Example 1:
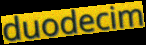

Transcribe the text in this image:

duodecim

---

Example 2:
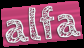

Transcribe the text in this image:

alfa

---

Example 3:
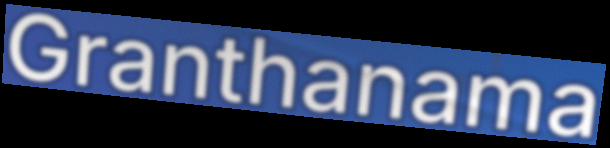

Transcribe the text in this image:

Granthanama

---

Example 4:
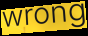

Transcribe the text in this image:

wrong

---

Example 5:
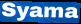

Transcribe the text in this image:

Syama